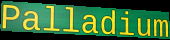
Palladium